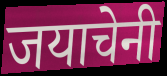
जयाचेनी